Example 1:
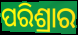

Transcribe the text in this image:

ପରିଶ୍ରାର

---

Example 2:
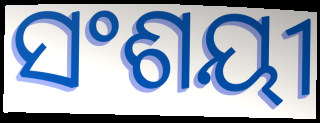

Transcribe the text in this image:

ସଂଶୟୀ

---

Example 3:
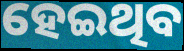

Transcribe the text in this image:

ହେଇଥିବ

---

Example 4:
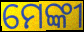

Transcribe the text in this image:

ମେଙ୍କୀ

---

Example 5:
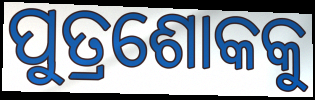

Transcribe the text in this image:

ପୁତ୍ରଶୋକକୁ